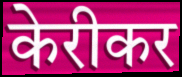
केरीकर